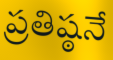
ప్రతిష్ఠనే